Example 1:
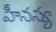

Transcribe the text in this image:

హీనస్య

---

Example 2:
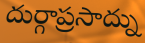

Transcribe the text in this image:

దుర్గాప్రసాద్ను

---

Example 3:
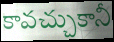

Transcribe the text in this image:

కావచ్చుకానీ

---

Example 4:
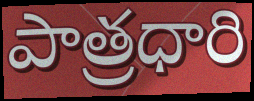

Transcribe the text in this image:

పాత్రధారి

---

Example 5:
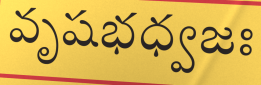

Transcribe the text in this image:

వృషభధ్వజః